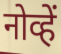
नोव्हें